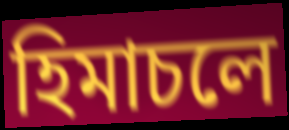
হিমাচলে